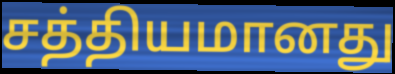
சத்தியமானது